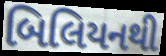
બિલિયનથી